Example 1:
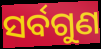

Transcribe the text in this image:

ସର୍ବଗୁଣ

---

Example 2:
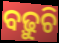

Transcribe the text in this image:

ବଢ଼ୁଚି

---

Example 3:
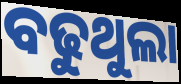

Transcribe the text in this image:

ବଢୁଥୁଲା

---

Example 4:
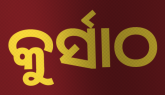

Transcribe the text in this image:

କୁର୍ସାଠ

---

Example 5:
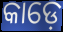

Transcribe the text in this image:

କାଡ଼େ